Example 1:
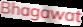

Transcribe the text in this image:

Bhagawat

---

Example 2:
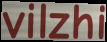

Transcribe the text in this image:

vilzhi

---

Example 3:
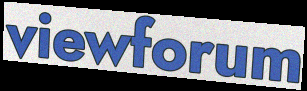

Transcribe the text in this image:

viewforum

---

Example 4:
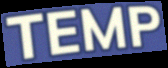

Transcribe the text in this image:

TEMP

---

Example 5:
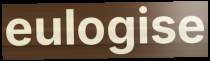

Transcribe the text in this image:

eulogise